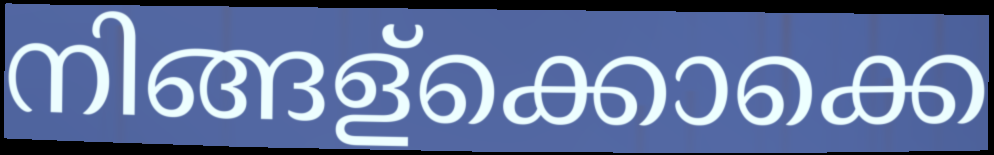
നിങ്ങള്ക്കൊക്കെ